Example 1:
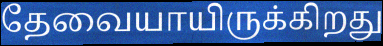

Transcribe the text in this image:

தேவையாயிருக்கிறது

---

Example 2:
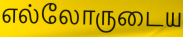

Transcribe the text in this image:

எல்லோருடைய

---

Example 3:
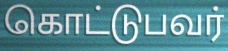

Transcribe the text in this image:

கொட்டுபவர்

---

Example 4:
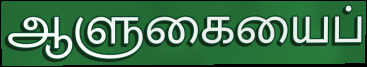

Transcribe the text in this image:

ஆளுகையைப்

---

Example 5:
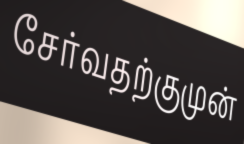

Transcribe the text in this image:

சேர்வதற்குமுன்